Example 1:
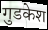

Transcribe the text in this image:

गुडकेश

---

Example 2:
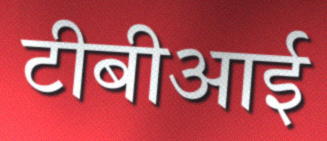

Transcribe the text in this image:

टीबीआई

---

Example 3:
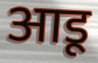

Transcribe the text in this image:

आडू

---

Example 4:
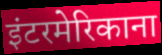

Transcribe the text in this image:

इंटरमेरिकाना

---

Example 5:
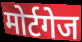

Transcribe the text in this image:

मोर्टगेज